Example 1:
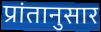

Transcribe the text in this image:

प्रांतानुसार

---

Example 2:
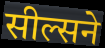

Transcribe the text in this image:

सील्सने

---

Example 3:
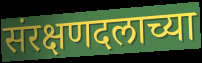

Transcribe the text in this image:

संरक्षणदलाच्या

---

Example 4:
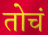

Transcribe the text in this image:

तोचं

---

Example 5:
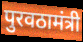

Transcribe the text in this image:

पुरवठामंत्री